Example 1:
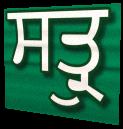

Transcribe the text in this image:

ਸਤ੍ਰੁ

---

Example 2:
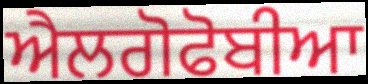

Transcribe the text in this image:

ਐਲਗੋਫੋਬੀਆ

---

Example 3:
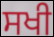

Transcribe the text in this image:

ਸਖੀ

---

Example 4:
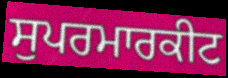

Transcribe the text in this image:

ਸੁਪਰਮਾਰਕੀਟ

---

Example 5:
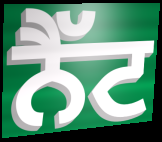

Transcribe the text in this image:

ਨੈੱਟ